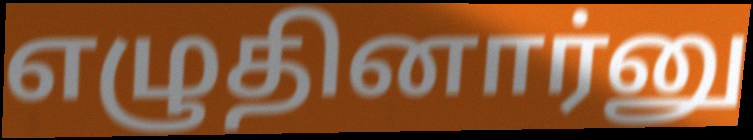
எழுதினார்னு